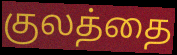
குலத்தை